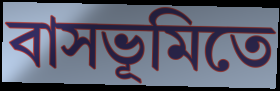
বাসভূমিতে